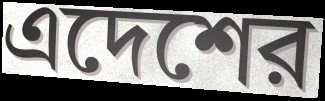
এদেশের